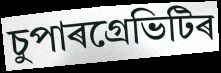
চুপাৰগ্ৰেভিটিৰ